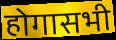
होगासभी